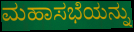
ಮಹಾಸಭೆಯನ್ನು